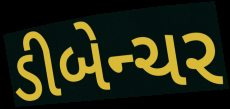
ડીબેન્ચર